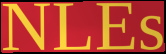
NLEs